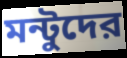
মন্টুদের